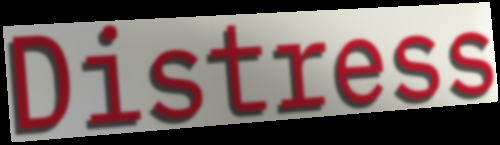
Distress